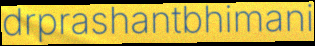
drprashantbhimani